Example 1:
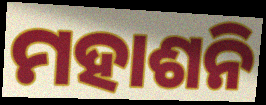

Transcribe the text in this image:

ମହାଶନି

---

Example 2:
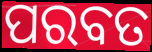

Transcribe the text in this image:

ପରବତ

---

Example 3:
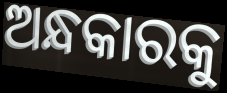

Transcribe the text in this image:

ଅନ୍ଧକାରକୁ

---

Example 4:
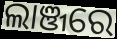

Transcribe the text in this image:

ଲାଞ୍ଜରେ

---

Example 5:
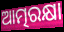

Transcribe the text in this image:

ଆତ୍ମରକ୍ଷା